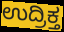
ಉದ್ರಿಕ್ತ